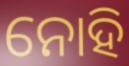
ନୋହି